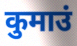
कुमाउं